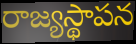
రాజ్యస్థాపన